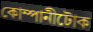
কোম্পানীটোক